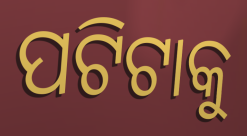
ପଟିଟାକୁ